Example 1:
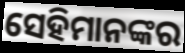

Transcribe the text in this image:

ସେହିମାନଙ୍କର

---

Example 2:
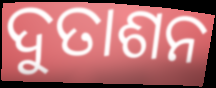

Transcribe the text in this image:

ଦୁତାଶନ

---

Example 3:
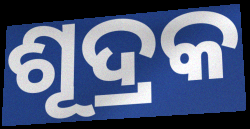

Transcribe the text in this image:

ଶୂଦ୍ରକ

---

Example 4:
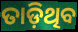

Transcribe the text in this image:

ତାଡ଼ିଥିବ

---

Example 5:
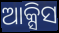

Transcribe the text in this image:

ଆକ୍ସିସ